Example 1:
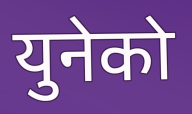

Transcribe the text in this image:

युनेको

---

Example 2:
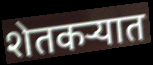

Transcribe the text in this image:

शेतकऱ्यात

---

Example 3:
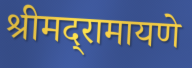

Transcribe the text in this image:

श्रीमद्‌रामायणे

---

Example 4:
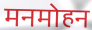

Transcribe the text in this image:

मनमोहन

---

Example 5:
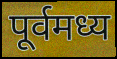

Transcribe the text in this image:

पूर्वमध्य